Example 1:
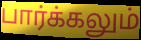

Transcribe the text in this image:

பார்க்கலும்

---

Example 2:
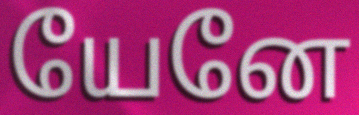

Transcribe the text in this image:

யேனே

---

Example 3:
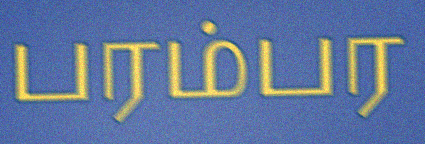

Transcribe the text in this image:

பரம்பர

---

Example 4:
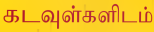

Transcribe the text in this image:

கடவுள்களிடம்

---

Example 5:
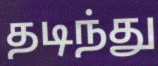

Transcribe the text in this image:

தடிந்து